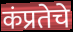
कंप्रतेचे